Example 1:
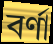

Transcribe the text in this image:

বর্ণা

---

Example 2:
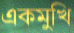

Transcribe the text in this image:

একমুখি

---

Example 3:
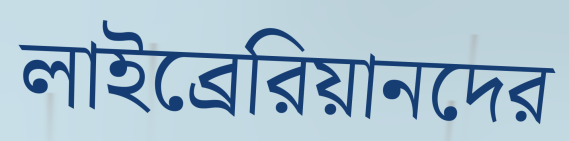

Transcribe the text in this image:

লাইব্রেরিয়ানদের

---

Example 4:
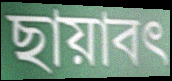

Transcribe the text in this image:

ছায়াবৎ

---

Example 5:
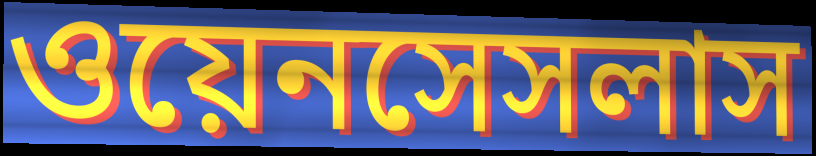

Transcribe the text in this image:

ওয়েনসেসলাস